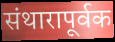
संथारापूर्वक